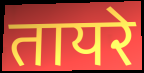
तायरे